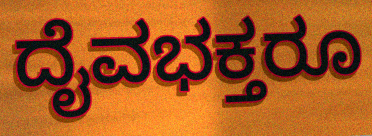
ದೈವಭಕ್ತರೂ